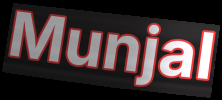
Munjal